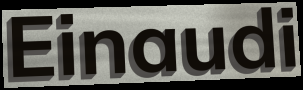
Einaudi